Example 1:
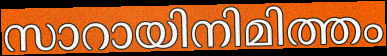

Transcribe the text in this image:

സാറായിനിമിത്തം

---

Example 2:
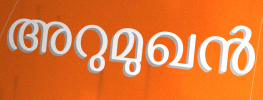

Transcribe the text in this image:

അറുമുഖൻ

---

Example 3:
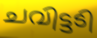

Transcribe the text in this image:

ചവിട്ടടി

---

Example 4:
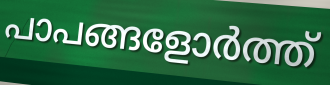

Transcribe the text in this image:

പാപങ്ങളോർത്ത്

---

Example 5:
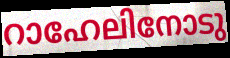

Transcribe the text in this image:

റാഹേലിനോടു